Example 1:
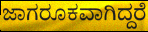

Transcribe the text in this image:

ಜಾಗರೂಕವಾಗಿದ್ದರೆ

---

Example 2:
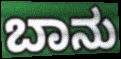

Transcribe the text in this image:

ಬಾನು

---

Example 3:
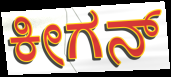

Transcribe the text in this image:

ಕೀಗನ್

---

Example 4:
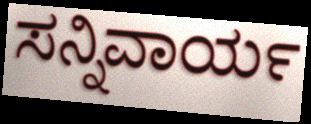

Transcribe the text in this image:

ಸನ್ನಿವಾರ್ಯ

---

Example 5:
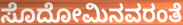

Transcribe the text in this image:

ಸೊದೋಮಿನವರಂತೆ